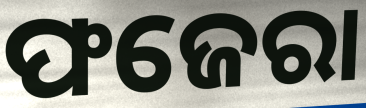
ଫଜେରା